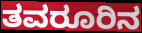
ತವರೂರಿನ